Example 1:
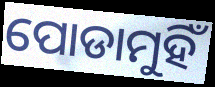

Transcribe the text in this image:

ପୋଡାମୁହିଁ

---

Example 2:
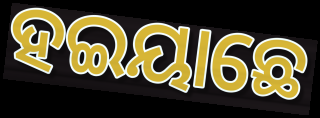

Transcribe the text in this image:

ହଇୟାଛେ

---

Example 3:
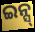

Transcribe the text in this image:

ଇନ୍ସ୍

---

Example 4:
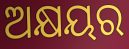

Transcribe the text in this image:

ଅକ୍ଷୟର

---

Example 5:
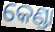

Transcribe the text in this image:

କେଣ୍ଡା